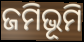
ଜମିଭୂମି